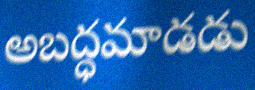
అబద్ధమాడడు